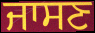
ਜਾਸਣ